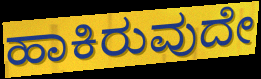
ಹಾಕಿರುವುದೇ